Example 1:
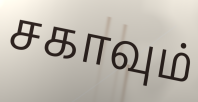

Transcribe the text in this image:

சகாவும்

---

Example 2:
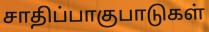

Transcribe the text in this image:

சாதிப்பாகுபாடுகள்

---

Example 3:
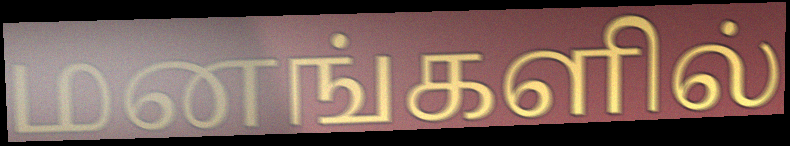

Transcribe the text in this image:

மனங்களில்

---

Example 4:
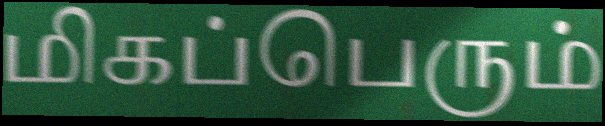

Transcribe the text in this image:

மிகப்பெரும்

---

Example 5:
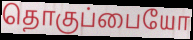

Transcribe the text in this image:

தொகுப்பையோ